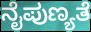
ನೈಪುಣ್ಯತೆ